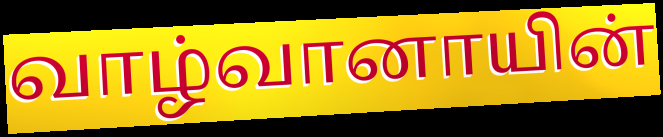
வாழ்வானாயின்